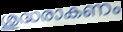
ശുദ്ധരാകണം